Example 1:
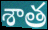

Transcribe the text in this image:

శాత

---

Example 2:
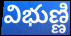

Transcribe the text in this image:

విభుణ్ణి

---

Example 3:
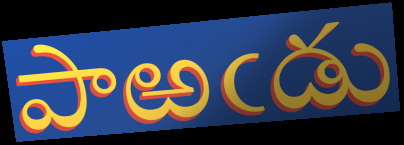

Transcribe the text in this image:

పాఱఁడు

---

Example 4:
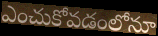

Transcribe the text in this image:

ఎంచుకోవడంలోనూ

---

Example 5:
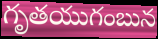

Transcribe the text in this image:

గృతయుగంబున